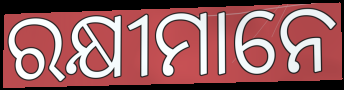
ରକ୍ଷୀମାନେ